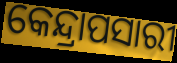
କେନ୍ଦ୍ରାପସାରୀ